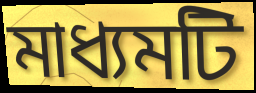
মাধ্যমটি